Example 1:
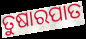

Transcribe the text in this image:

ତୁଷାରପାତ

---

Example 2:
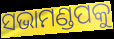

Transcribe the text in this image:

ସଭାମଣ୍ଡପକୁ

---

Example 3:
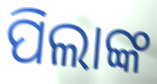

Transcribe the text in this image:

ପିଲାଙ୍କ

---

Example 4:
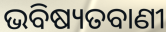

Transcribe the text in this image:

ଭବିଷ୍ୟତବାଣୀ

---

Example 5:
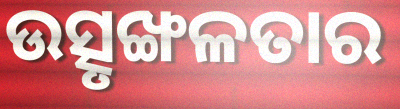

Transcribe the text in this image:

ଉତ୍ସୃଙ୍ଖଳତାର